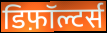
डिफ़ॉल्टर्स